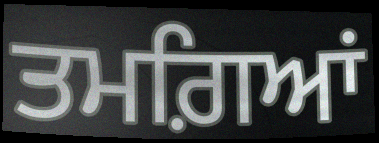
ਤਮਗ਼ਿਆਂ